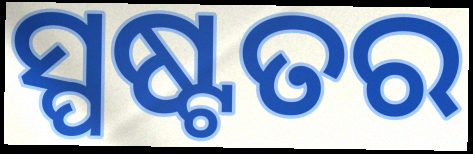
ସ୍ପଷ୍ଟତର